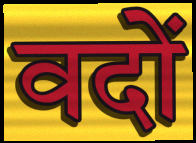
वदों